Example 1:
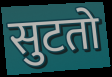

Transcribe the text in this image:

सुटतो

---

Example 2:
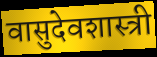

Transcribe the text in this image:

वासुदेवशास्त्री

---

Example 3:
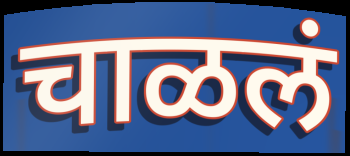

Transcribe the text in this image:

चाळलं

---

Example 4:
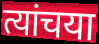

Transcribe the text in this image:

त्यांचया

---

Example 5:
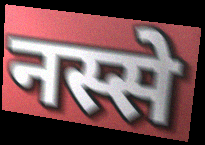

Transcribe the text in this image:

नस्से